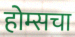
होम्सचा